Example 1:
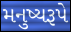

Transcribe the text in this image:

મનુષ્યરૂપે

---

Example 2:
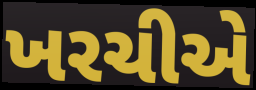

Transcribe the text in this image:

ખરચીએ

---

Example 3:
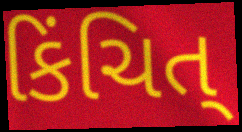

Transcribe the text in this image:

કિંચિત્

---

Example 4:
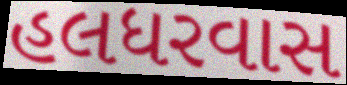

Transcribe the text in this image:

હલધરવાસ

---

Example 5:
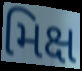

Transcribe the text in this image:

મિક્ષ